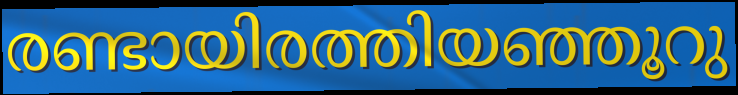
രണ്ടായിരത്തിയഞ്ഞൂറു